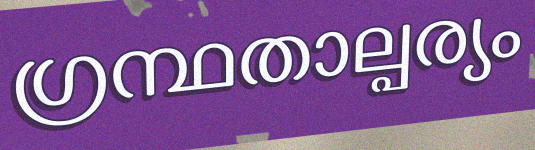
ഗ്രന്ഥതാല്പര്യം